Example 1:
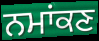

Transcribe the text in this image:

ਨਮਾਂਕਣ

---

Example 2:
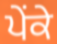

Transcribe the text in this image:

ਪੇਂਕੇ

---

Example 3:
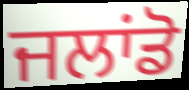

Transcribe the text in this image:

ਜਲਾਂਡੋ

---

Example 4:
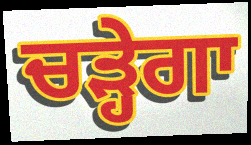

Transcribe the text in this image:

ਚੜ੍ਹੇਗਾ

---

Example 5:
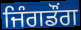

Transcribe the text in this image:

ਜਿੰਗਡੌਂਗ